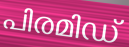
പിരമിഡ്